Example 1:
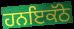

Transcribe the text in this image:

ਹਨਇਕੱਠੇ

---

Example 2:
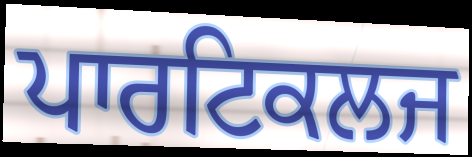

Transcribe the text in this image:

ਪਾਰਟਿਕਲਜ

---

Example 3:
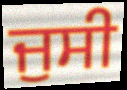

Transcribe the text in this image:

ਜੁਸੀ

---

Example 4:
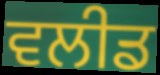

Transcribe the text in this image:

ਵਲੀਡ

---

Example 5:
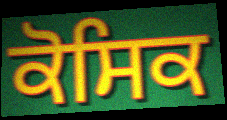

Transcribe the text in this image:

ਕੋਸਿਕ